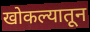
खोकल्यातून